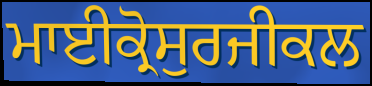
ਮਾਈਕ੍ਰੋਸੁਰਜੀਕਲ